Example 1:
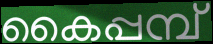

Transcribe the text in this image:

കൈപ്പമ്പ്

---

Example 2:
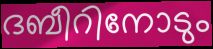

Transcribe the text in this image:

ദബീറിനോടും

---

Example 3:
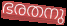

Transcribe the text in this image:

ഭരതനു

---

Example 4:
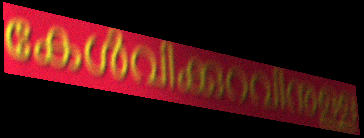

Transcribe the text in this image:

കേൾവിക്കുറവിനുള്ള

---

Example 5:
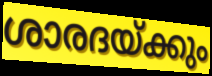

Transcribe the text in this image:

ശാരദയ്ക്കും